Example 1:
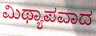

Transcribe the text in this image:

ಮಿಥ್ಯಾಪವಾದ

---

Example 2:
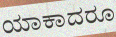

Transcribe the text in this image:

ಯಾಕಾದರೂ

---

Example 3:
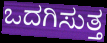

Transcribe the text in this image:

ಒದಗಿಸುತ್ತ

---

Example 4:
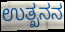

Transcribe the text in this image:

ಉತ್ಖನನ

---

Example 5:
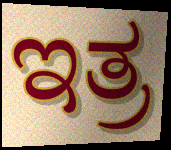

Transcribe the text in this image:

ಇತ್ರ